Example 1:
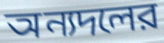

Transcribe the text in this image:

অন্যদলের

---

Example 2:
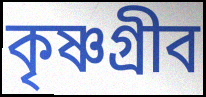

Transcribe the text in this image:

কৃষ্ণগ্রীব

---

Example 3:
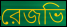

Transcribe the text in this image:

রেজভি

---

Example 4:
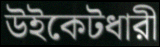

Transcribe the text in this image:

উইকেটধারী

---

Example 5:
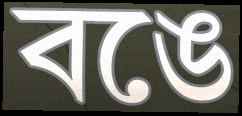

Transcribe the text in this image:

বঙে